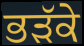
ਭੜੱਕੇ